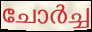
ചോർച്ച